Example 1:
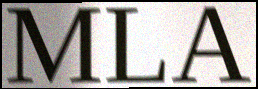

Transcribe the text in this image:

MLA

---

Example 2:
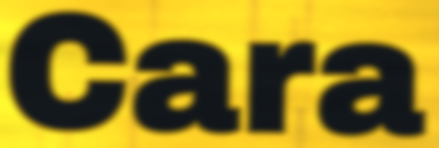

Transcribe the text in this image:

Cara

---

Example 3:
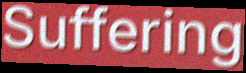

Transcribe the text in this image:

Suffering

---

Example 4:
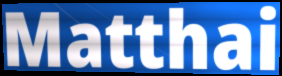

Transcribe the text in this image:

Matthai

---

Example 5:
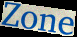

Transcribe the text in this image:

Zone